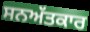
ਸਨਅੱਤਕਾਰ